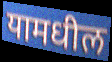
यामधील